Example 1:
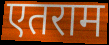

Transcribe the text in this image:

एतराम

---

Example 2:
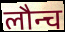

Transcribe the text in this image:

लौन्च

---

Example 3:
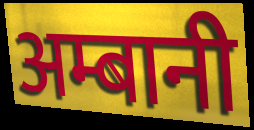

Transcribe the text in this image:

अम्‍बानी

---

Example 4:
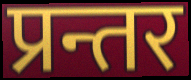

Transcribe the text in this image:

प्रन्तर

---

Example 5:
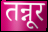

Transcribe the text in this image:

तन्नूर